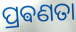
ପ୍ରଵଣତା